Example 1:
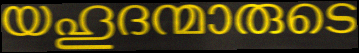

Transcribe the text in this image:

യഹൂദന്മാരുടെ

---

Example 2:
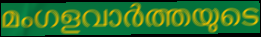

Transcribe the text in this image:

മംഗളവാർത്തയുടെ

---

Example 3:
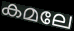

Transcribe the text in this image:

കമലേ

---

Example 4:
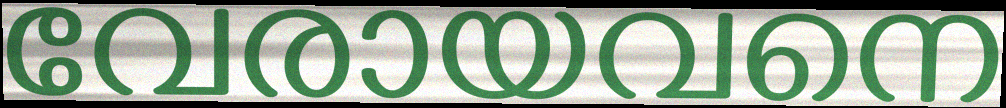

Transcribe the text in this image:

വേരായവനെ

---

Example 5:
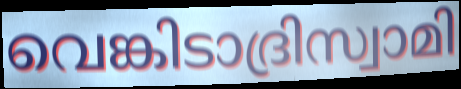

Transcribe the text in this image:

വെങ്കിടാദ്രിസ്വാമി